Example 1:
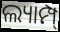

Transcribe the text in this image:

ଲ୍ୟାମ୍ପ୍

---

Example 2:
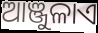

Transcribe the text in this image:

ଆଞ୍ଜୁଳାଏ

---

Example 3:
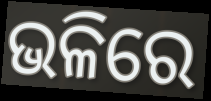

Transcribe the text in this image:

ଭଳିରେ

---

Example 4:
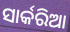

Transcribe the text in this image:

ସାର୍କରିଆ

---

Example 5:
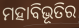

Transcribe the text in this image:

ମହାବିଭୂତିର